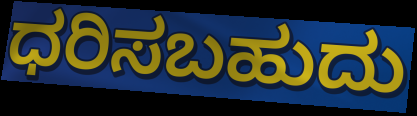
ಧರಿಸಬಹುದು